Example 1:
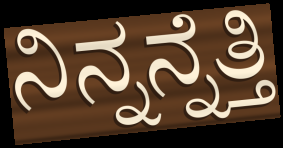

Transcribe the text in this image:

ನಿನ್ನನ್ನೆತ್ತಿ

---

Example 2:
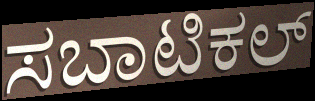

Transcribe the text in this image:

ಸಬಾಟಿಕಲ್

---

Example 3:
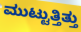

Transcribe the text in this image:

ಮುಟ್ಟುತ್ತಿತ್ತು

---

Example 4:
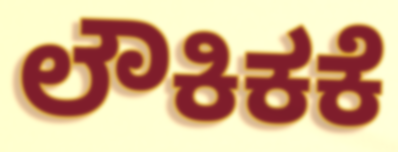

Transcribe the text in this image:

ಲೌಕಿಕಕೆ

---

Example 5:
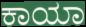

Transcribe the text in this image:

ಕಾಯಾ